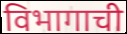
विभागाची